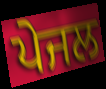
ਪੇਜਲ